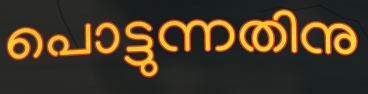
പൊട്ടുന്നതിനു